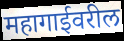
महागाईवरील